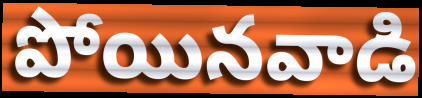
పోయినవాడి